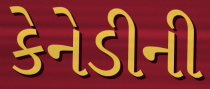
કેનેડીની